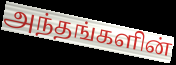
அந்தங்களின்